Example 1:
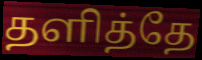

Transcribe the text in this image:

தளித்தே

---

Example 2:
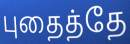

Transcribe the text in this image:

புதைத்தே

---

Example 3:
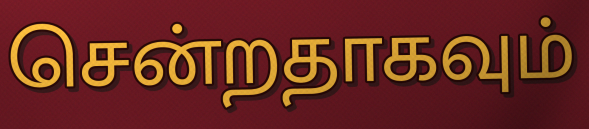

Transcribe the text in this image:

சென்றதாகவும்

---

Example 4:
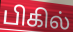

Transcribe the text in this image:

பிகில்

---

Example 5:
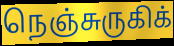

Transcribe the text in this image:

நெஞ்சுருகிக்